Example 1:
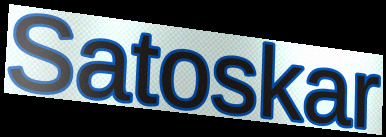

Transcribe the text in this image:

Satoskar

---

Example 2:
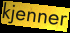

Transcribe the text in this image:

kjenner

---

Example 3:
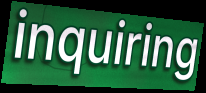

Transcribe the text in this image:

inquiring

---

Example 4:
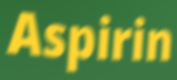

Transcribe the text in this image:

Aspirin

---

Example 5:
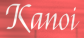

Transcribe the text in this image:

Kanoi